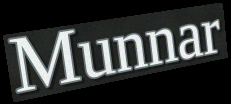
Munnar